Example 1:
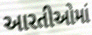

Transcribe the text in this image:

આરતીઓમાં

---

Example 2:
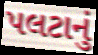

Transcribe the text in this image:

પલટાનું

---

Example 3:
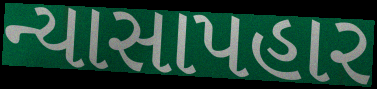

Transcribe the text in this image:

ન્યાસાપહાર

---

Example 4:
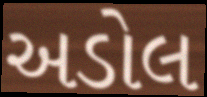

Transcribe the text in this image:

અડોલ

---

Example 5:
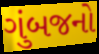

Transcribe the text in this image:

ગુંબજનો